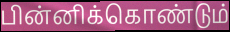
பின்னிக்கொண்டும்